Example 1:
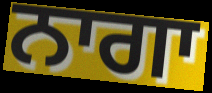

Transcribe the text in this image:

ਨਾਗਾ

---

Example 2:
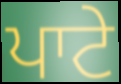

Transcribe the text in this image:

ਪਾਟੇ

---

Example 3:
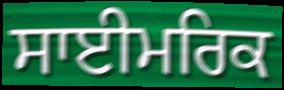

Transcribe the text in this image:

ਸਾਈਮਰਿਕ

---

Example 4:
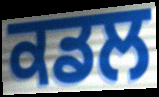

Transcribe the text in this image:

ਕਡਲ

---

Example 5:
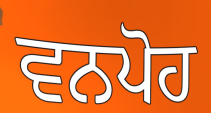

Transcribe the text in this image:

ਵਨਪੋਹ